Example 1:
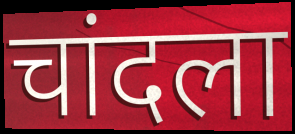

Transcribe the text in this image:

चांदला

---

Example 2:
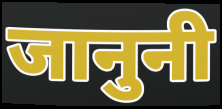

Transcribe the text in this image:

जानुनी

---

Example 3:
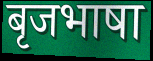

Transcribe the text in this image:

बृजभाषा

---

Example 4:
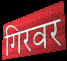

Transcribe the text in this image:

गिरवर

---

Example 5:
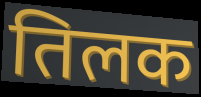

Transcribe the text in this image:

तिलक